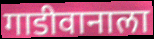
गाडीवानाला